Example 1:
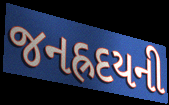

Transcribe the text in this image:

જનહ્રદયની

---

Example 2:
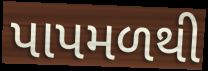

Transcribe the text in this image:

પાપમળથી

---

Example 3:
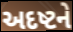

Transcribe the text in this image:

અદષ્ટને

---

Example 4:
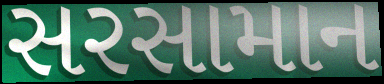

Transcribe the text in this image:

સરસામાન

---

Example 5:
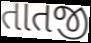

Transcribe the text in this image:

તાતજી